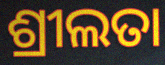
ଶ୍ରୀଲତା